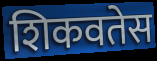
शिकवतेस